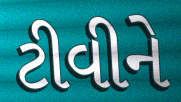
ટીવીને